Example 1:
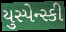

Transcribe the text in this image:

યુસ્પેન્સ્કી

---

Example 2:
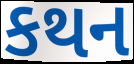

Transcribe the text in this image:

કથન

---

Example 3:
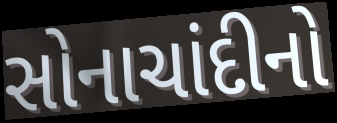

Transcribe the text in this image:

સોનાચાંદીનો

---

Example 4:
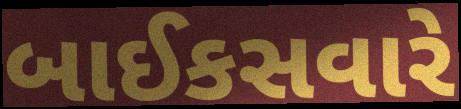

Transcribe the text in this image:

બાઈકસવારે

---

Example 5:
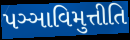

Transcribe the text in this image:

પઞ્ઞાવિમુત્તીતિ